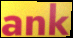
ank